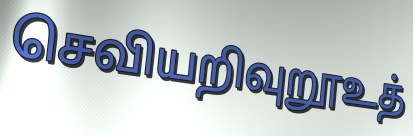
செவியறிவுறூஉத்